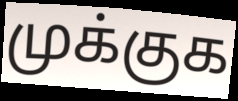
முக்குக